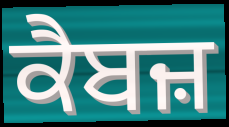
ਕੈਬਜ਼